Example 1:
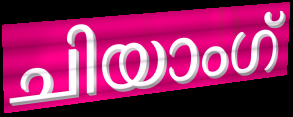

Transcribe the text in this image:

ചിയാംഗ്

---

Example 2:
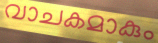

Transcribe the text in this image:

വാചകമാകും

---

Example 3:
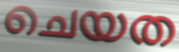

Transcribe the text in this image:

ചെയത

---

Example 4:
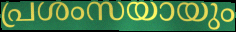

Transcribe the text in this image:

പ്രശംസയായും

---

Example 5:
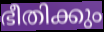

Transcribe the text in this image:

ഭീതിക്കും